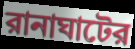
রানাঘাটের